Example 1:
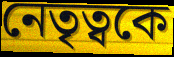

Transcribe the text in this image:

নেতৃত্বকে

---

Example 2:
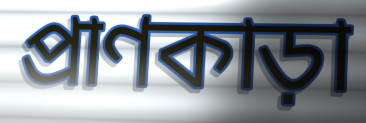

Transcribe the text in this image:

প্রাণকাড়া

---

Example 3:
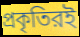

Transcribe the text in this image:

প্রকৃতিরই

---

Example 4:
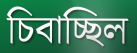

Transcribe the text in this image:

চিবাচ্ছিল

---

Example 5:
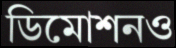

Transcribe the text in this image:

ডিমোশনও